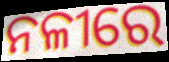
ନଳୀରେ